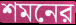
শমনের